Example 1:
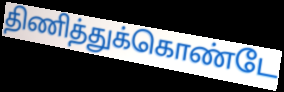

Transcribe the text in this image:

திணித்துக்கொண்டே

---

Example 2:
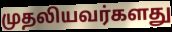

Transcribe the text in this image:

முதலியவர்களது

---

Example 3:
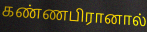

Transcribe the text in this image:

கண்ணபிரானால்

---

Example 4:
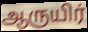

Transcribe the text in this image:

ஆருயிர்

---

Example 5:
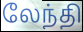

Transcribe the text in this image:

லேந்தி